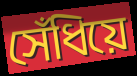
সেঁধিয়ে